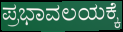
ಪ್ರಭಾವಲಯಕ್ಕೆ